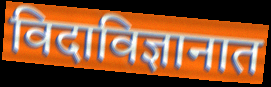
विदाविज्ञानात